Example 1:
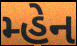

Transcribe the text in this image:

મ્હેન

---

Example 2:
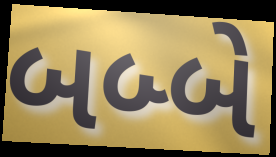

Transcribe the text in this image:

બબ્બે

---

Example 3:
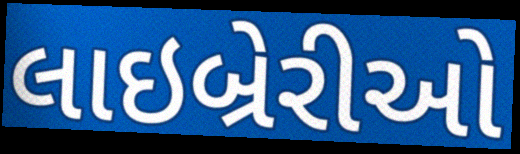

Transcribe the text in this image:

લાઇબ્રેરીઓ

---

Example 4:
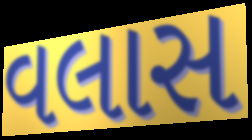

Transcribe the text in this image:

વલાસ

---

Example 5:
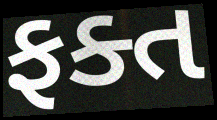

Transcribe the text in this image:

ફક્ત